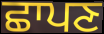
ਛਾਪਣ